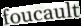
foucault